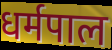
धर्मपाल